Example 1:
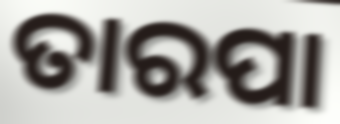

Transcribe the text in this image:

ତାରପା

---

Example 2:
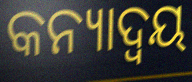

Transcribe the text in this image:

କନ୍ୟାଦ୍ୱୟ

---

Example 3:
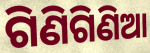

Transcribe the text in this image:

ଗିଣିଗିଣିଆ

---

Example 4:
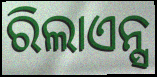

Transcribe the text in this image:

ରିଲାଏନ୍ସ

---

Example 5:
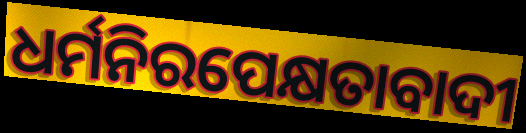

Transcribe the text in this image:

ଧର୍ମନିରପେକ୍ଷତାବାଦୀ